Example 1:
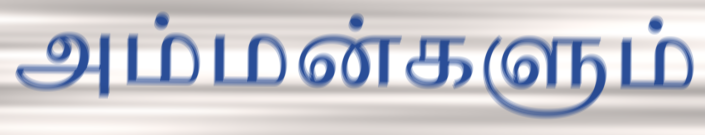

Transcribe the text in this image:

அம்மன்களும்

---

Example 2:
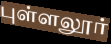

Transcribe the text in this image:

புள்ளலூர்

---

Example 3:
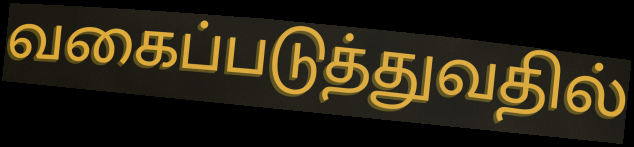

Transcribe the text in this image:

வகைப்படுத்துவதில்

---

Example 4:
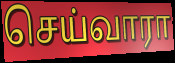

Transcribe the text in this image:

செய்வாரா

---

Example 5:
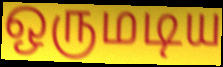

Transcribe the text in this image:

ஒருமடிய